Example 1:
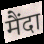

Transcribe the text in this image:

मैंदा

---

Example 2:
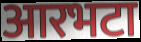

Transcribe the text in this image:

आरभटा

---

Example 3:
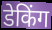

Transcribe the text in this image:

डेकिंग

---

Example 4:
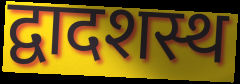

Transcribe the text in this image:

द्वादशस्थ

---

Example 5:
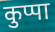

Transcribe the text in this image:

कुप्पा